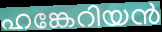
ഹങ്കേറിയൻ